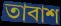
তাবাশ